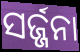
ସର୍ଜ୍ଜନା